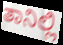
ತಾನಿಲ್ಲಿ